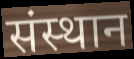
संस्थान